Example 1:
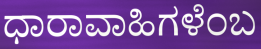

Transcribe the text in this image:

ಧಾರಾವಾಹಿಗಳೆಂಬ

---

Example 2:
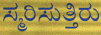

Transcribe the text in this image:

ಸ್ಮರಿಸುತ್ತಿರು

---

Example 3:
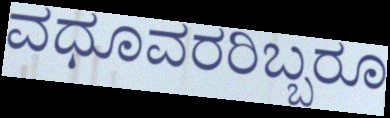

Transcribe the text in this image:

ವಧೂವರರಿಬ್ಬರೂ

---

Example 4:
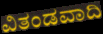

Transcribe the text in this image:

ವಿತಂಡವಾದಿ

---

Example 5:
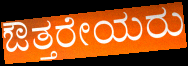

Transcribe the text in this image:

ಔತ್ತರೇಯರು